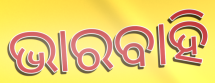
ଭାରବାହି